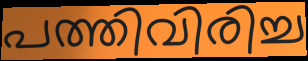
പത്തിവിരിച്ച